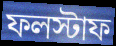
ফলস্টাফ